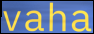
vaha